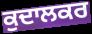
ਕੁਦਾਲਕਰ